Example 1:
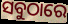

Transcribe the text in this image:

ସବୁଠାରେ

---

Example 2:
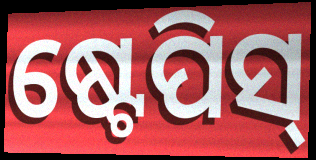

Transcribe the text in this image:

ଷ୍ଟେପିସ୍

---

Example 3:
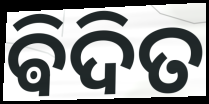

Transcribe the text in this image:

ଵିଦିତ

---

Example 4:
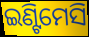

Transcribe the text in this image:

ଇଣ୍ଟିମେସି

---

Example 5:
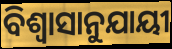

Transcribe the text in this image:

ବିଶ୍ୱାସାନୁଯାୟୀ